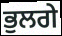
ਭੁਲਗੇ